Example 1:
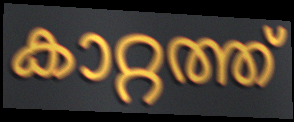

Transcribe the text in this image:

കാറ്റത്ത്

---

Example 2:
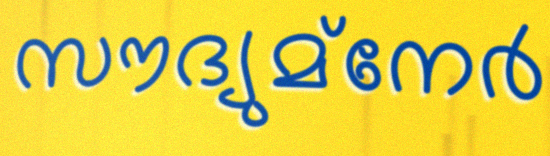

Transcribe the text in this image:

സൗദ്യുമ്നേർ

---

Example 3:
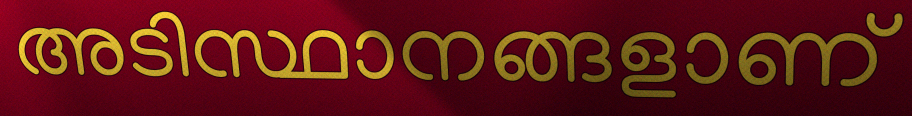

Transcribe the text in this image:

അടിസ്ഥാനങ്ങളാണ്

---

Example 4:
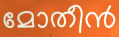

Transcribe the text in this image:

മോതീൻ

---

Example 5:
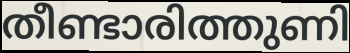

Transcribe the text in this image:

തീണ്ടാരിത്തുണി